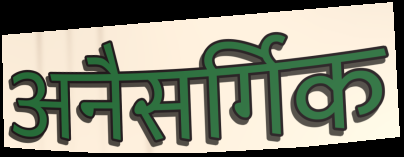
अनैसर्गिक